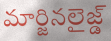
మార్జినలైజ్డ్